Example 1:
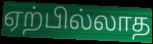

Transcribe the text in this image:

ஏற்பில்லாத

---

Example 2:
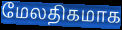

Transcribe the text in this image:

மேலதிகமாக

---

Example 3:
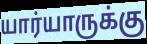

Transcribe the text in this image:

யார்யாருக்கு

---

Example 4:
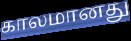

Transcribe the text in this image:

காலமானது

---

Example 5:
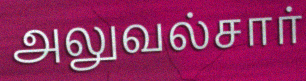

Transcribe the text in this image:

அலுவல்சார்